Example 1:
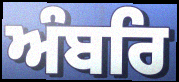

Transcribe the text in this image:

ਅੰਬਰਿ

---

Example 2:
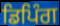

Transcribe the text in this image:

ਡਿਪਿੰਗ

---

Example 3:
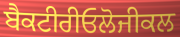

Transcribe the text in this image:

ਬੈਕਟੀਰੀਓਲੋਜੀਕਲ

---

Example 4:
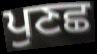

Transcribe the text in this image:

ਪੁਣਛ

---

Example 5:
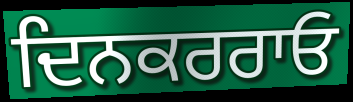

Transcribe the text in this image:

ਦਿਨਕਰਰਾਓ